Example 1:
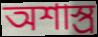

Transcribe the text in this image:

অশাস্ত্র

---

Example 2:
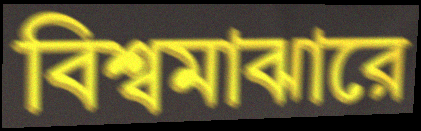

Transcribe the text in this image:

বিশ্বমাঝারে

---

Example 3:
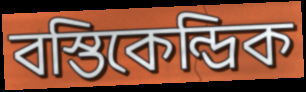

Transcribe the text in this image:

বস্তিকেন্দ্রিক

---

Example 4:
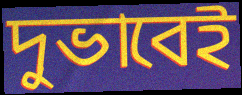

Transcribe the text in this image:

দুভাবেই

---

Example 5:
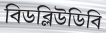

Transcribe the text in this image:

বিডব্লিউডিবি